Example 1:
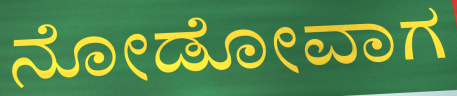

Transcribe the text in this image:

ನೋಡೋವಾಗ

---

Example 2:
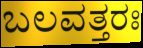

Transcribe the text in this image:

ಬಲವತ್ತರಃ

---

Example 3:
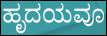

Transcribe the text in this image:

ಹೃದಯವೂ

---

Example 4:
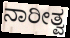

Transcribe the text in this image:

ನಾರೀತ್ವ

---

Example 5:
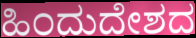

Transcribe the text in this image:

ಹಿಂದುದೇಶದ